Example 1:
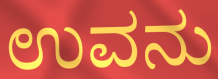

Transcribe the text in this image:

ಉವನು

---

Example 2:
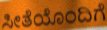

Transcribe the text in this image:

ಸೀತೆಯೊಂದಿಗೆ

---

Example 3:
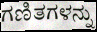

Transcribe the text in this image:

ಗಣಿತಗಳನ್ನು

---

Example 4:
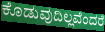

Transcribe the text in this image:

ಕೊಡುವುದಿಲ್ಲವೆಂದರೆ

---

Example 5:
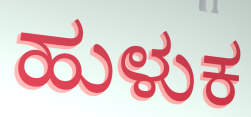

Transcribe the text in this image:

ಹುಳುಕ